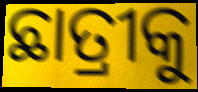
ଛାତ୍ରୀକୁ